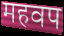
महवप